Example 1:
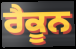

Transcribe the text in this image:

ਰੈਕੂਨ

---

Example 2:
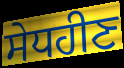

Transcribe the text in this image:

ਸੇਧਹੀਣ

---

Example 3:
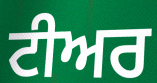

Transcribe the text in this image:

ਟੀਅਰ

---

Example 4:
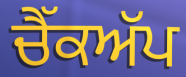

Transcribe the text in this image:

ਚੈੱਕਅੱਪ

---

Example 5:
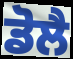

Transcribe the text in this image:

ਡੋਲੈ